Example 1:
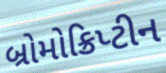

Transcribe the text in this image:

બ્રોમોક્રિપ્ટીન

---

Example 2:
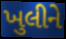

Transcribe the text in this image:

ખુલીને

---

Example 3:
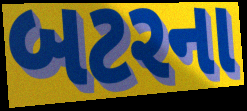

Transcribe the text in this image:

બટરના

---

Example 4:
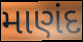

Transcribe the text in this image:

માણંદ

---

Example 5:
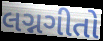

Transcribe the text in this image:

લગ્નગીતો